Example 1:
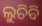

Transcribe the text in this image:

ଲୁଚିବି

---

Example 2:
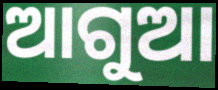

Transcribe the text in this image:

ଆଗୁଆ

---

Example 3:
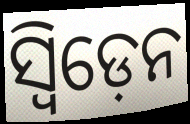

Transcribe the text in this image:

ସ୍ବିଡ଼େନ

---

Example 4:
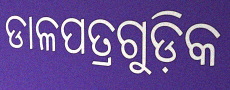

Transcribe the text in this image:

ଡାଳପତ୍ରଗୁଡ଼ିକ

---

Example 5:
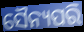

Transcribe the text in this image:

ସୈନ୍ୟପରି